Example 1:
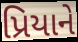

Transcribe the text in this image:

પ્રિયાને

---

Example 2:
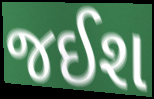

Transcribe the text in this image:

જઈશ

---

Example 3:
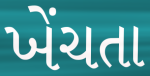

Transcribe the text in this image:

ખેંચતા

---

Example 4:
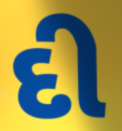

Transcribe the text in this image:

દી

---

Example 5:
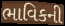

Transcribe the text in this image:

ભાવિકની